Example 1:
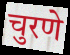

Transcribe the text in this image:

चुरणे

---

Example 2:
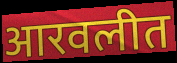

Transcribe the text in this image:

आरवलीत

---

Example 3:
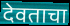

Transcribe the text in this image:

देवताचा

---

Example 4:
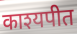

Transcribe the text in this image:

काश्यपीत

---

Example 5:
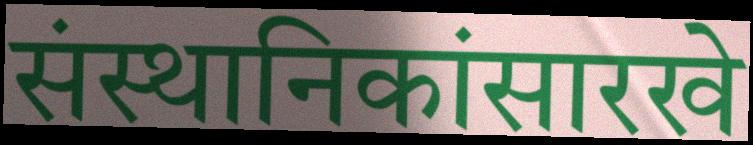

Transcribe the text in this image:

संस्थानिकांसारखे